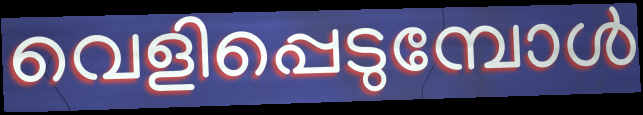
വെളിപ്പെടുമ്പോൾ